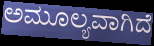
ಅಮೂಲ್ಯವಾಗಿದೆ